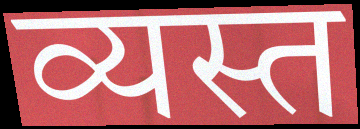
व्यस्त